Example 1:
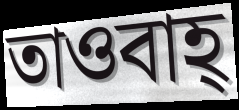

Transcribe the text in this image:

তাওবাহ্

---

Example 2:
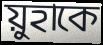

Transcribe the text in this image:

য়ুহাকে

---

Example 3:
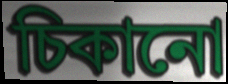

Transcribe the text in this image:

চিকানো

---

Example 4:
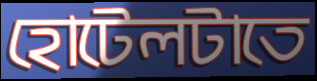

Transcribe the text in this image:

হোটেলটাতে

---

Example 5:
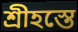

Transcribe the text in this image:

শ্রীহস্তে